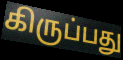
கிருப்பது